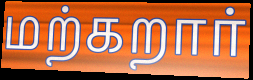
மற்கறார்